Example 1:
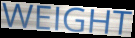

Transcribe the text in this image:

WEIGHT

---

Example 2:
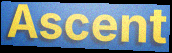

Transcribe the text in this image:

Ascent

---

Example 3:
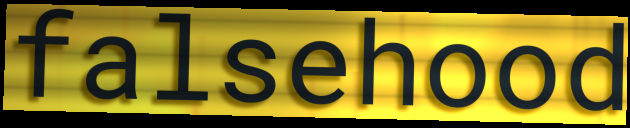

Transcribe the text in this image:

falsehood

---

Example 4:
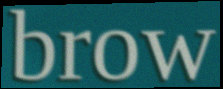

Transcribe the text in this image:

brow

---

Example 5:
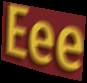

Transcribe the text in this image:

Eee